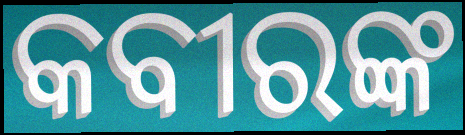
କବୀରଙ୍କ